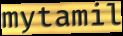
mytamil